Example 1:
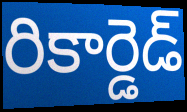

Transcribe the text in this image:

రికార్డెడ్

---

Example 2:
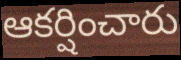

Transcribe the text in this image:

ఆకర్షించారు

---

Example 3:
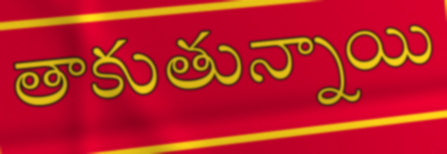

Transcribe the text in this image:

తాకుతున్నాయి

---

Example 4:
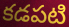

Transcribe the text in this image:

కడపటి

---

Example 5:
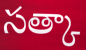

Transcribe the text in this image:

సత్కా